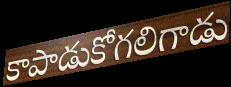
కాపాడుకోగలిగాడు